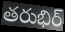
తరుభిర్